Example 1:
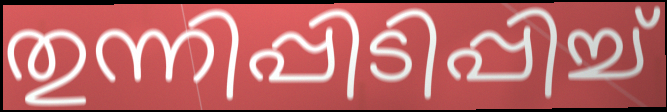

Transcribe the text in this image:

തുന്നിപ്പിടിപ്പിച്ച്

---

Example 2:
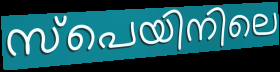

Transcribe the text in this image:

സ്പെയിനിലെ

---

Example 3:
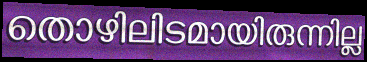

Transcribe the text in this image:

തൊഴിലിടമായിരുന്നില്ല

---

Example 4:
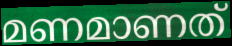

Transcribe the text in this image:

മണമാണത്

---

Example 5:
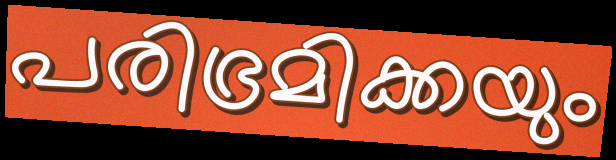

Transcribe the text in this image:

പരിഭ്രമിക്കയും